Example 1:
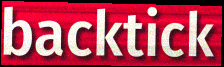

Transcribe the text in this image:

backtick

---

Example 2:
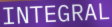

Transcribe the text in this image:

INTEGRAL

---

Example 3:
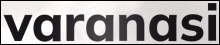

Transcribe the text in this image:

varanasi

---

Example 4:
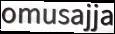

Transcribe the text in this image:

omusajja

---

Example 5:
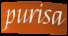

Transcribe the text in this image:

purisa